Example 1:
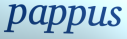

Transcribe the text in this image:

pappus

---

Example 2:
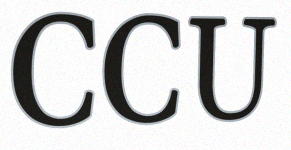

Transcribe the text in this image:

CCU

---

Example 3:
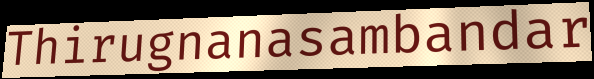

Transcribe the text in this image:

Thirugnanasambandar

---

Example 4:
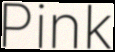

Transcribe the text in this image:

Pink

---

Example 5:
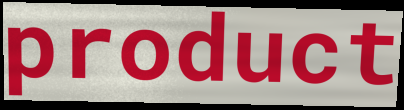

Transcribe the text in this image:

product